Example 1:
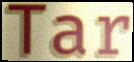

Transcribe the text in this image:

Tar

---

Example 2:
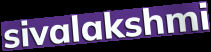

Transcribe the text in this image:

sivalakshmi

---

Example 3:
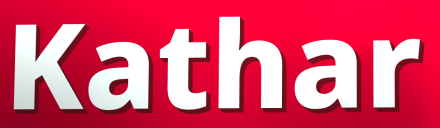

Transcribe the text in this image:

Kathar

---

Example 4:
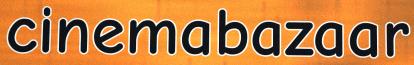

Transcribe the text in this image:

cinemabazaar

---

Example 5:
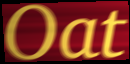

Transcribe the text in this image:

Oat